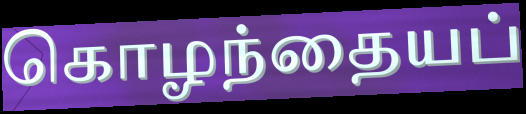
கொழந்தையப்